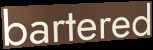
bartered